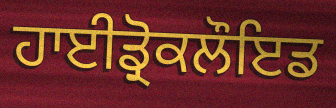
ਹਾਈਡ੍ਰੋਕਲੌਇਡ